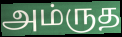
அம்ருத